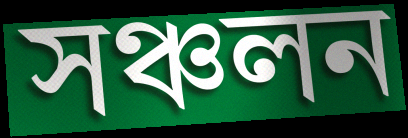
সঞ্চলন